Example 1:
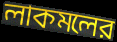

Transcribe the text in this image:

লাকমলের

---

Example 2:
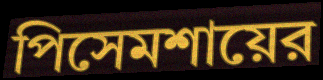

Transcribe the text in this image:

পিসেমশায়ের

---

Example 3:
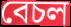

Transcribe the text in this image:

বেচল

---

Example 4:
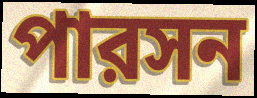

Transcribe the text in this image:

পারসন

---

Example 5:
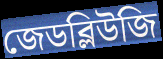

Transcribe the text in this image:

জেডব্লিউজি